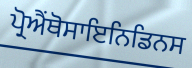
ਪ੍ਰੋਐਂਥੋਸਾਇਨਿਡਿਨਸ